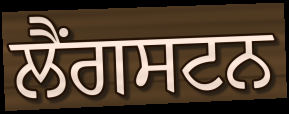
ਲੈਂਗਸਟਨ